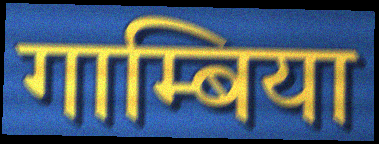
गाम्बिया